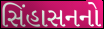
સિંહાસનનો